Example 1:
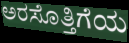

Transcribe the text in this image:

ಅರಸೊತ್ತಿಗೆಯ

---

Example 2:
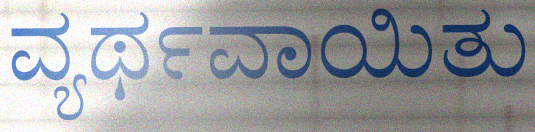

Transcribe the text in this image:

ವ್ಯರ್ಥವಾಯಿತು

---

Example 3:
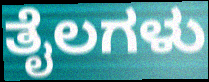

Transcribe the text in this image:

ತೈಲಗಳು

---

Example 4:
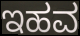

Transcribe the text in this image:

ಇಹವ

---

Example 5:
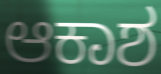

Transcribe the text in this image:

ಆಕಾಶ